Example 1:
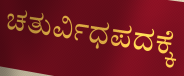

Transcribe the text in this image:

ಚತುರ್ವಿಧಪದಕ್ಕೆ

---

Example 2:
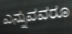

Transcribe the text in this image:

ಎನ್ನುವವರೂ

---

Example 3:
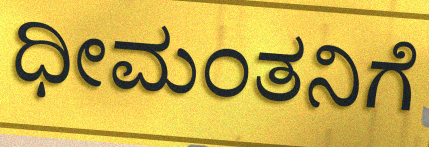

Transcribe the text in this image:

ಧೀಮಂತನಿಗೆ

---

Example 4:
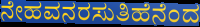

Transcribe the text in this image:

ನೇಹವನರಸುತಿಹೆನೆಂದ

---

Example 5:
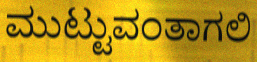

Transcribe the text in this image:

ಮುಟ್ಟುವಂತಾಗಲಿ